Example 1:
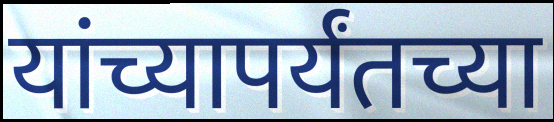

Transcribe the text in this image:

यांच्यापर्यंतच्या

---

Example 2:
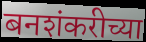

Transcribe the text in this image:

बनशंकरीच्या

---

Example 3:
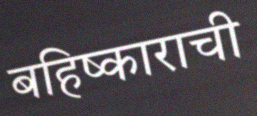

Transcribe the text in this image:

बहिष्काराची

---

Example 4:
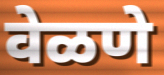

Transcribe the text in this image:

वेळणे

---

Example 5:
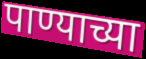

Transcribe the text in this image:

पाण्याच्या